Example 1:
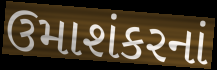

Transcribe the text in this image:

ઉમાશંકરનાં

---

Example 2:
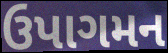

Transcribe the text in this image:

ઉપાગમન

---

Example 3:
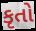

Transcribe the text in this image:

કૃતો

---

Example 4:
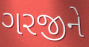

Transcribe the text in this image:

ગરજીને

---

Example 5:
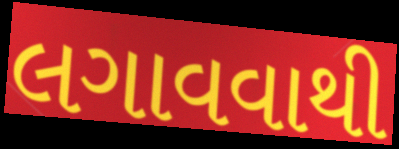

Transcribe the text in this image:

લગાવવાથી